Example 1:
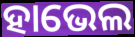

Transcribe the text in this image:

ହାଭେଲ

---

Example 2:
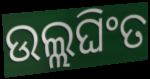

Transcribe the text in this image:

ଉଲ୍ଲଘିଂତ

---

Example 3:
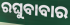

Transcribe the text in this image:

ରଘୁବାବାର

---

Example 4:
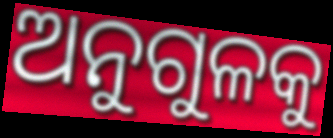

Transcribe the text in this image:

ଅନୁଗୁଳକୁ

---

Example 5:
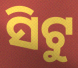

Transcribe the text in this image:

ସିଟୁ